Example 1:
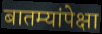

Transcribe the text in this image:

बातम्यांपेक्षा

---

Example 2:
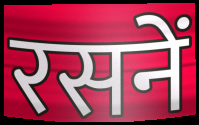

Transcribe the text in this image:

रसनें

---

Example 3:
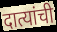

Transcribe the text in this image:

दात्यांची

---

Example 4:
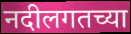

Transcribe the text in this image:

नदीलगतच्या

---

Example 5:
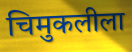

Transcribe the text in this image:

चिमुकलीला